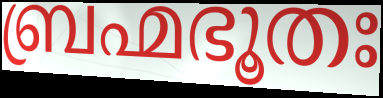
ബ്രഹ്മഭൂതഃ